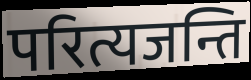
परित्यजन्ति